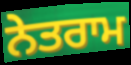
ਨੇਤਰਾਮ